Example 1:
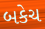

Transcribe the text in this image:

બકેચ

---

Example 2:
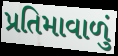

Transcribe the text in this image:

પ્રતિમાવાળું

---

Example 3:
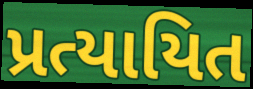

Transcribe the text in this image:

પ્રત્યાયિત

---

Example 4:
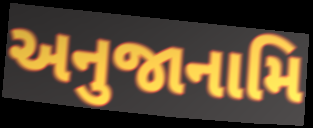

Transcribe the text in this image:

અનુજાનામિ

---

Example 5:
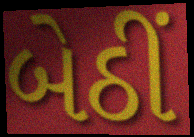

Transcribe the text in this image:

બેઠીં